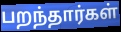
பறந்தார்கள்